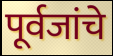
पूर्वजांचे